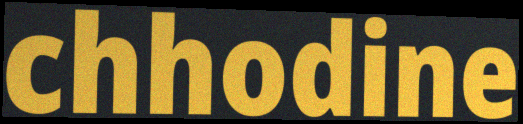
chhodine